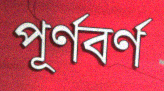
পূর্ণবর্ণ